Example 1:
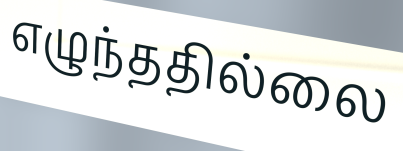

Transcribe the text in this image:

எழுந்ததில்லை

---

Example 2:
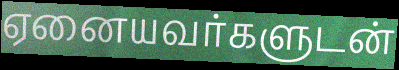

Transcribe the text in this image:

ஏனையவர்களுடன்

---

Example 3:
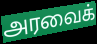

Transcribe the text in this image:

அரவைக்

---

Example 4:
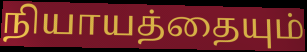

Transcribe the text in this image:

நியாயத்தையும்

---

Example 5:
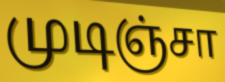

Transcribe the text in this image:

முடிஞ்சா